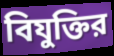
বিযুক্তির